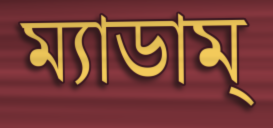
ম্যাডাম্